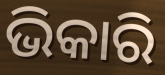
ଭିକାରି